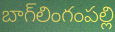
బాగ్‌లింగంపల్లి